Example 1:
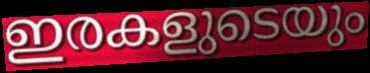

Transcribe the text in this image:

ഇരകളുടെയും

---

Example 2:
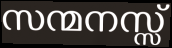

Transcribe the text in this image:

സന്മനസ്സ്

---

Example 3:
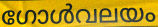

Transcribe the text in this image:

ഗോൾവലയം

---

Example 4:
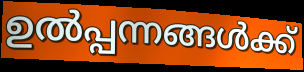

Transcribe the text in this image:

ഉൽപ്പന്നങ്ങൾക്ക്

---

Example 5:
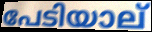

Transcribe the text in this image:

പേടിയാല്